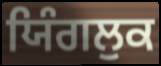
ਯਿੰਗਲੁਕ